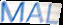
MAL